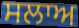
ਸਲਾਅ